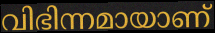
വിഭിന്നമായാണ്